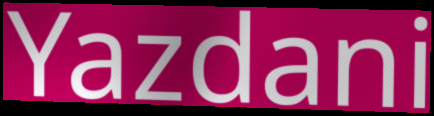
Yazdani